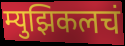
म्युझिकलचं